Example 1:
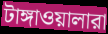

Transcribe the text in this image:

টাঙ্গাওয়ালারা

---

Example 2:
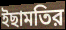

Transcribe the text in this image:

ইছামতির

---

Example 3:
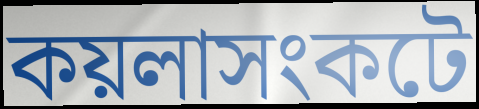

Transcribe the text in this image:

কয়লাসংকটে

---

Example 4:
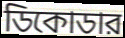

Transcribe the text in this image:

ডিকোডার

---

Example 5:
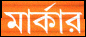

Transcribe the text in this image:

মার্কার